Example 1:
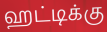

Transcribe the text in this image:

ஹட்டிக்கு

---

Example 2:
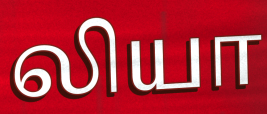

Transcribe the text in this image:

லியா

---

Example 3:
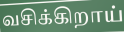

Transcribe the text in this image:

வசிக்கிறாய்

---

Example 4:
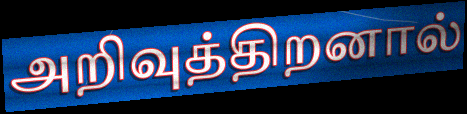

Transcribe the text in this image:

அறிவுத்திறனால்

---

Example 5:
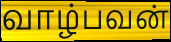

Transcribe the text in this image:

வாழ்பவன்